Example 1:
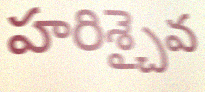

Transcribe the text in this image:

హరిశ్చైవ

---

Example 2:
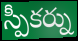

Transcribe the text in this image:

స్పీకర్ను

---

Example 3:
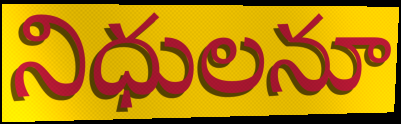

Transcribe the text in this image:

నిధులనూ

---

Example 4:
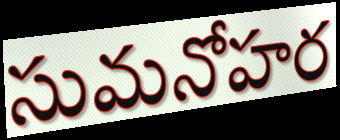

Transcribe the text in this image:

సుమనోహర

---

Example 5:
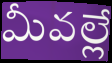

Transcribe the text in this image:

మీవల్లే